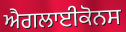
ਐਗਲਾਈਕੋਨਸ